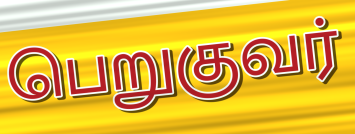
பெறுகுவர்